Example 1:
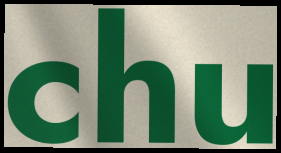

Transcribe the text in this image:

chu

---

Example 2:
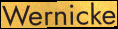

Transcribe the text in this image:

Wernicke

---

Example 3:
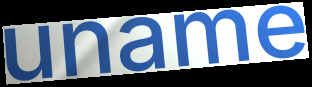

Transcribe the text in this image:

uname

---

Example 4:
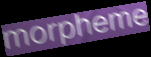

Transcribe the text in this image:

morpheme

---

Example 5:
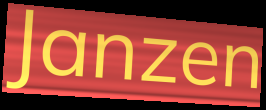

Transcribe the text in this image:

Janzen